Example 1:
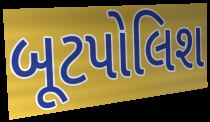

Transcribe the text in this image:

બૂટપોલિશ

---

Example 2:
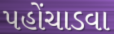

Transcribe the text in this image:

પહોંચાડવા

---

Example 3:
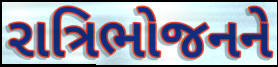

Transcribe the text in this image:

રાત્રિભોજનને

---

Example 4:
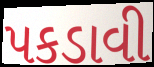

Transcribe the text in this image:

પકડાવી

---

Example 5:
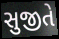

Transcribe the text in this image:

સુજીતે